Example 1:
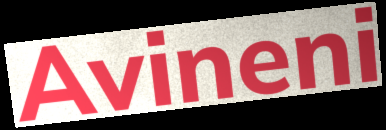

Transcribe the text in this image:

Avineni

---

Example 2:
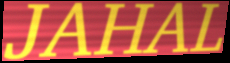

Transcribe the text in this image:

JAHAL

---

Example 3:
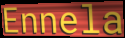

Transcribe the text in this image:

Ennela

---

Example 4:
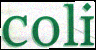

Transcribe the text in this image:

coli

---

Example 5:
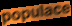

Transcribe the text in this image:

populace